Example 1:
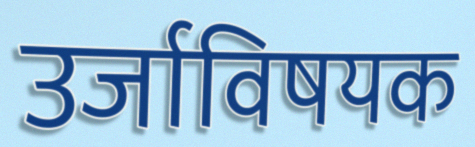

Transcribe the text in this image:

उर्जाविषयक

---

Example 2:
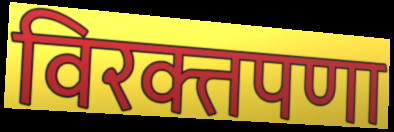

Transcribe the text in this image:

विरक्तपणा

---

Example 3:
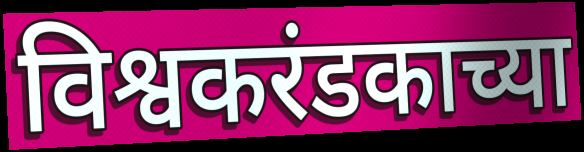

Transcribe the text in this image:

विश्वकरंडकाच्या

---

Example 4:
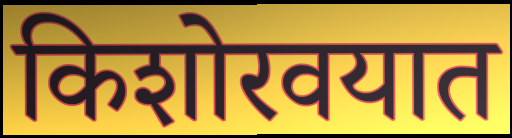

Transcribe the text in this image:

किशोरवयात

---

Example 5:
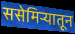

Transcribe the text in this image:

ससेमिऱ्यातून